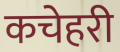
कचेहरी